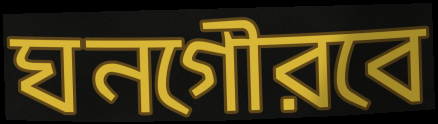
ঘনগৌরবে